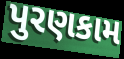
પુરણકામ